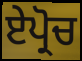
ਏਪ੍ਰੋਚ